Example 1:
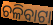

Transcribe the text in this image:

ଚଳିବାଟା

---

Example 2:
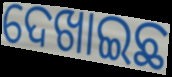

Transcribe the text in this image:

ଦେଖାଇଛ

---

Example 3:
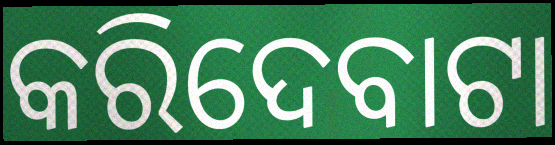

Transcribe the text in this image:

କରିଦେବାଟା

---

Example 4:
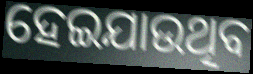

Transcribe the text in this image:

ହେଇଯାଉଥିବ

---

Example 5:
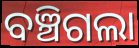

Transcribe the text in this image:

ବଞ୍ଚିଗଲା